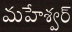
మహేశ్వర్